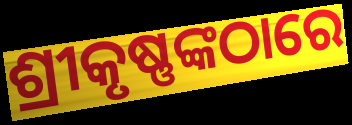
ଶ୍ରୀକୃଷ୍ଣଙ୍କଠାରେ